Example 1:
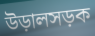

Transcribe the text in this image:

উড়ালসড়ক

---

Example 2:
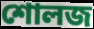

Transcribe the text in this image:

শোলজ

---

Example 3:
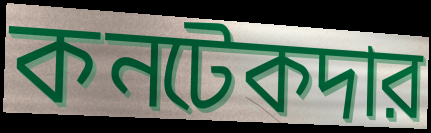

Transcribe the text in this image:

কনটেকদার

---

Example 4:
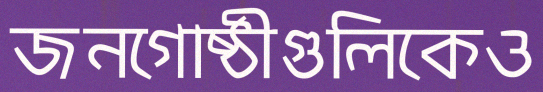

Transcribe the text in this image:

জনগোষ্ঠীগুলিকেও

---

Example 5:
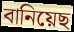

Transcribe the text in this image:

বানিয়েছ